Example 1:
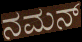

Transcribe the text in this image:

ನಮನ್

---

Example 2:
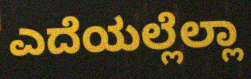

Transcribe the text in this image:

ಎದೆಯಲ್ಲೆಲ್ಲಾ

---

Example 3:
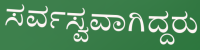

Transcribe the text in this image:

ಸರ್ವಸ್ವವಾಗಿದ್ದರು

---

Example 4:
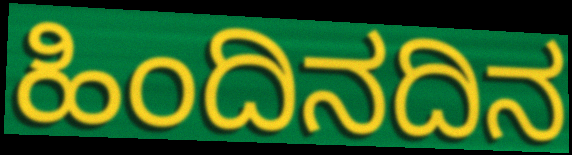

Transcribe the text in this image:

ಹಿಂದಿನದಿನ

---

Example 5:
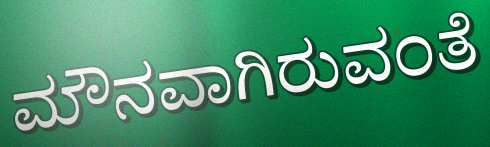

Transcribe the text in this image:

ಮೌನವಾಗಿರುವಂತೆ